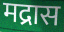
मद्रास